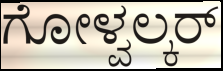
ಗೋಳ್ವಲ್ಕರ್